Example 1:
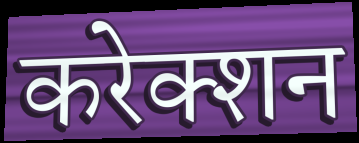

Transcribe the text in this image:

करेक्शन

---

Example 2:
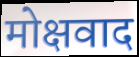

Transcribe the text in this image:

मोक्षवाद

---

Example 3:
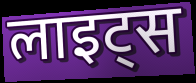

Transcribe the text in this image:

लाइट्स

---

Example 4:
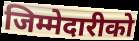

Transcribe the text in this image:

जिम्मेदारीको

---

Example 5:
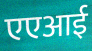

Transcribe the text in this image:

एएआई